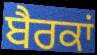
ਬੈਰਕਾਂ